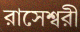
রাসেশ্বরী